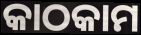
କାଠକାମ